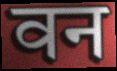
वन